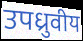
उपध्रुवीय